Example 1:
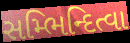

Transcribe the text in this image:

સમ્ભિન્દિત્વા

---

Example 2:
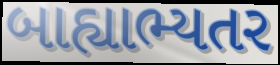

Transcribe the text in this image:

બાહ્યાભ્યતર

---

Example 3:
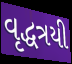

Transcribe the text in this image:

વૃદ્ધત્રયી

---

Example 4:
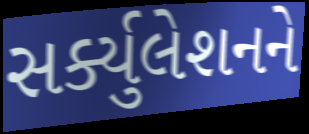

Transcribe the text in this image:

સર્ક્યુલેશનને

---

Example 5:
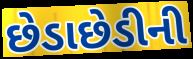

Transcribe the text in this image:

છેડાછેડીની